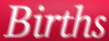
Births